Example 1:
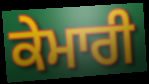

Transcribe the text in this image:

ਕੇਮਾਰੀ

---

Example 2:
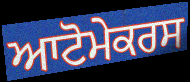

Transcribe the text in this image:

ਆਟੋਮੇਕਰਸ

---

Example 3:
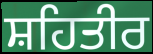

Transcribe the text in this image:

ਸ਼ਹਿਤੀਰ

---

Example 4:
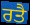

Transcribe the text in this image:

ਰਤੈ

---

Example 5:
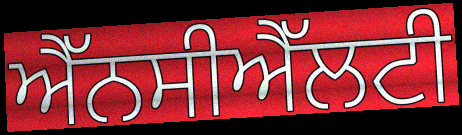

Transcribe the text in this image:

ਐੱਨਸੀਐੱਲਟੀ